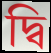
দ্বি